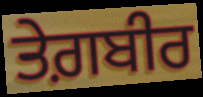
ਤੇਗ਼ਬੀਰ